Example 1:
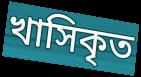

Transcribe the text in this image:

খাসিকৃত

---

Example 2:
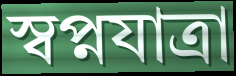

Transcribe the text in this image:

স্বপ্নযাত্রা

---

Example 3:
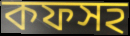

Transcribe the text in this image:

কফসহ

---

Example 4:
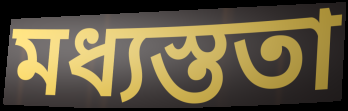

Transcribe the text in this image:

মধ্যস্ততা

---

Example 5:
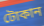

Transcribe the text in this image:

টোকান